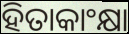
ହିତାକାଂକ୍ଷା